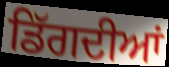
ਡਿੱਗਦੀਆਂ